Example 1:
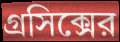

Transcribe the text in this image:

গ্রসিক্সের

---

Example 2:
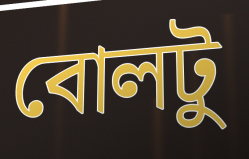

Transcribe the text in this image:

বোলটু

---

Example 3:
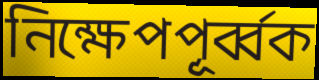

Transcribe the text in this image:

নিক্ষেপপূর্ব্বক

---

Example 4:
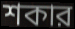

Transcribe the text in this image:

শকার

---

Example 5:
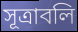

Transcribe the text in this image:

সূত্রাবলি